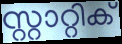
സ്റ്റാറ്റിക്